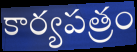
కార్యపత్రం